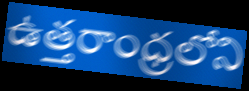
ఉత్తరాంధ్రలోని